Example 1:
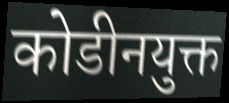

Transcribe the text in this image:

कोडीनयुक्त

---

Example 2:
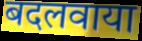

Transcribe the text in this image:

बदलवाया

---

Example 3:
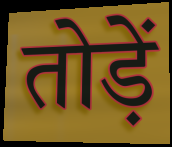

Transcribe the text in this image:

तोड़ें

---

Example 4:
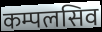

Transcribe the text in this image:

कम्पलसिव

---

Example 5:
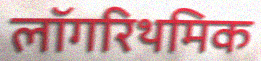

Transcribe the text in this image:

लॉगरिथमिक